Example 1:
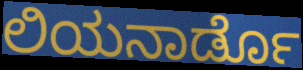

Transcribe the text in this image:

ಲಿಯನಾರ್ಡೊ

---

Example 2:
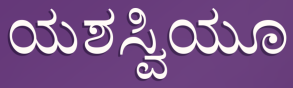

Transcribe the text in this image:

ಯಶಸ್ವಿಯೂ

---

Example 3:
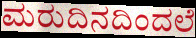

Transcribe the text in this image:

ಮರುದಿನದಿಂದಲೆ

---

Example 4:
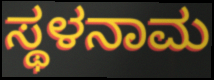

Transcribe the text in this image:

ಸ್ಥಳನಾಮ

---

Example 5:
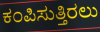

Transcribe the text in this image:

ಕಂಪಿಸುತ್ತಿರಲು